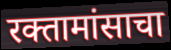
रक्तामांसाचा